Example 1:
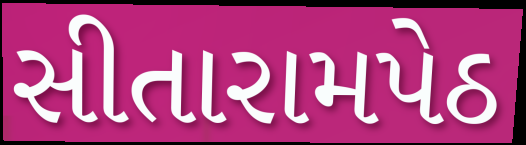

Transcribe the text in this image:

સીતારામપેઠ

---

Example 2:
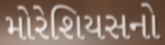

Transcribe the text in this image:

મોરેશિયસનો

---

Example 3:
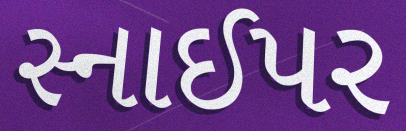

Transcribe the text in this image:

સ્નાઈપર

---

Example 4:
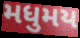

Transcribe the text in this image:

મધુમય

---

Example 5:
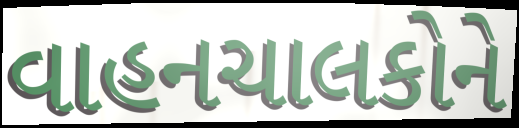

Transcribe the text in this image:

વાહનચાલકોને